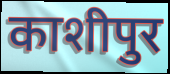
काशीपुर